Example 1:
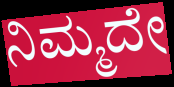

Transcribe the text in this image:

ನಿಮ್ಮದೇ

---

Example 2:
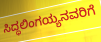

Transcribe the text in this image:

ಸಿದ್ಧಲಿಂಗಯ್ಯನವರಿಗೆ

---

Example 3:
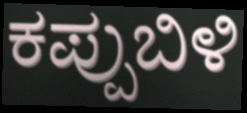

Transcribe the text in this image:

ಕಪ್ಪುಬಿಳಿ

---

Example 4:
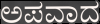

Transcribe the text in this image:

ಅಪವಾದ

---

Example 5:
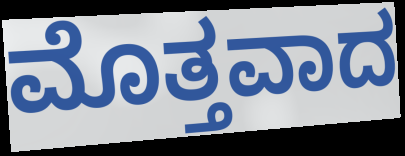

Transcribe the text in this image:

ಮೊತ್ತವಾದ